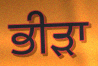
ਭੀੜਾ